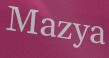
Mazya